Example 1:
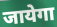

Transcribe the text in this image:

जायेगा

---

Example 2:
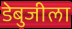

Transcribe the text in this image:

डेबुजीला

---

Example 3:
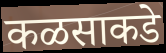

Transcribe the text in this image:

कळसाकडे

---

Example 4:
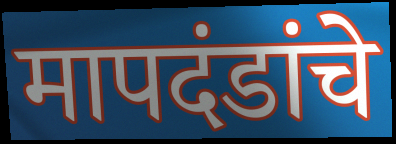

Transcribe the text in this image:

मापदंडांचे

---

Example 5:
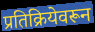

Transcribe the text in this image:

प्रतिक्रियेवरून